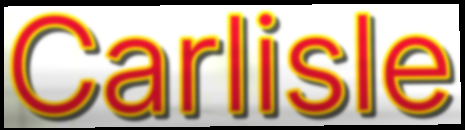
Carlisle